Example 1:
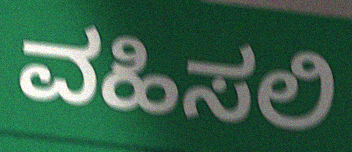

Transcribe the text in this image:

ವಹಿಸಲಿ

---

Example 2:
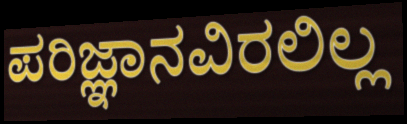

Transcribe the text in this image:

ಪರಿಜ್ಞಾನವಿರಲಿಲ್ಲ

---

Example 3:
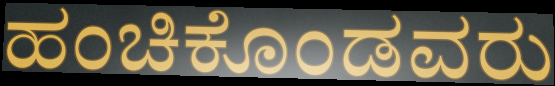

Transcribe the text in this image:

ಹಂಚಿಕೊಂಡವರು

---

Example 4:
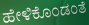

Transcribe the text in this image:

ಹೇಳಿಕೊಂಡಂತೆ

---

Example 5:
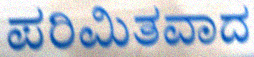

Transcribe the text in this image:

ಪರಿಮಿತವಾದ